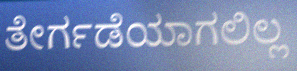
ತೇರ್ಗಡೆಯಾಗಲಿಲ್ಲ